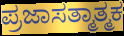
ಪ್ರಜಾಸತ್ಮಾತ್ಮಕ